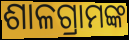
ଶାଳଗ୍ରାମଙ୍କ